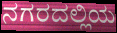
ನಗರದಲ್ಲಿಯ